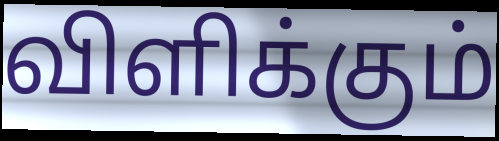
விளிக்கும்